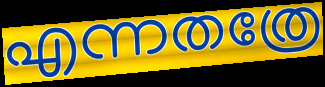
എന്നതത്രേ